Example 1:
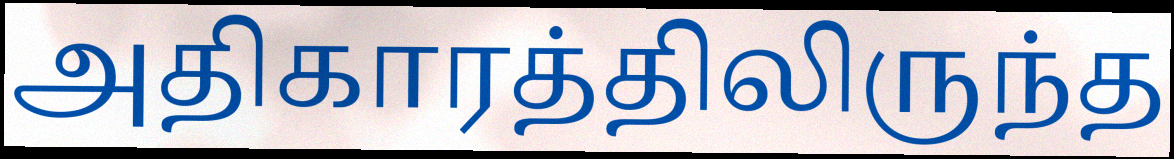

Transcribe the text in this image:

அதிகாரத்திலிருந்த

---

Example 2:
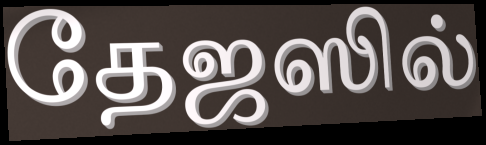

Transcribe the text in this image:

தேஜஸில்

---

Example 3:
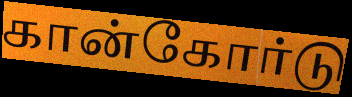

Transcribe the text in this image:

கான்கோர்டு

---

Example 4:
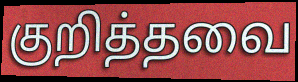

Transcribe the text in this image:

குறித்தவை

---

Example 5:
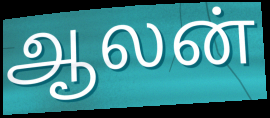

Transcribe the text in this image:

ஆலன்